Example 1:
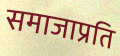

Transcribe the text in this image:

समाजाप्रति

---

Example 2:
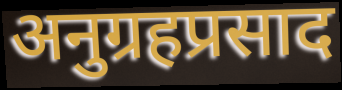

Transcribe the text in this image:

अनुग्रहप्रसाद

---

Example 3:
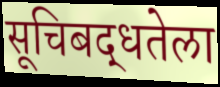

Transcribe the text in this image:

सूचिबद्धतेला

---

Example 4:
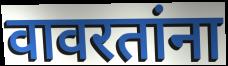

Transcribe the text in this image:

वावरतांना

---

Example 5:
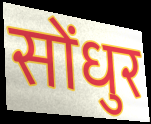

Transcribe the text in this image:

सोंधुर